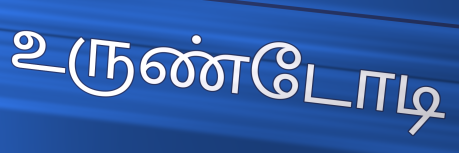
உருண்டோடி